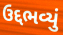
ઉદ્દભવ્યું